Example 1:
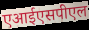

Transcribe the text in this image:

एआईएसपीएल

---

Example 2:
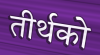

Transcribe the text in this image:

तीर्थको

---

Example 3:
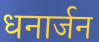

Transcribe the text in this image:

धनार्जन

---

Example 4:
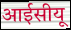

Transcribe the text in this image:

आईसीयू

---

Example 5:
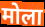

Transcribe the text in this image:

मोला